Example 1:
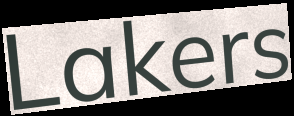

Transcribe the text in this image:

Lakers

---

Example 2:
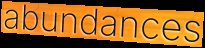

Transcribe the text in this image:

abundances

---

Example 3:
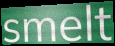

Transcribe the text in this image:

smelt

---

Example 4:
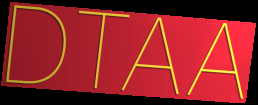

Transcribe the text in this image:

DTAA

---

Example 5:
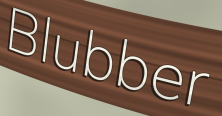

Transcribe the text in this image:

Blubber